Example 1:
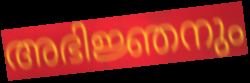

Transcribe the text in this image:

അഭിജ്ഞനും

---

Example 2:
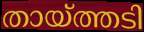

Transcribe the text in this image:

തായ്ത്തടി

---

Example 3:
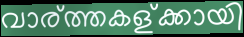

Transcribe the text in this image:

വാര്ത്തകള്ക്കായി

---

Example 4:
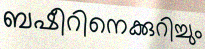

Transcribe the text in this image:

ബഷീറിനെക്കുറിച്ചും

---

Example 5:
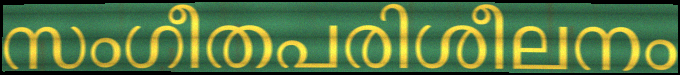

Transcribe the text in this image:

സംഗീതപരിശീലനം